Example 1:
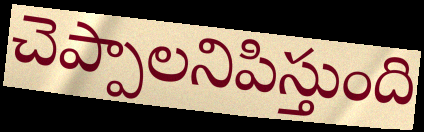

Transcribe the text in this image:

చెప్పాలనిపిస్తుంది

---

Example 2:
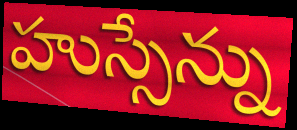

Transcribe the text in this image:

హుస్సేన్ను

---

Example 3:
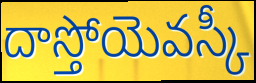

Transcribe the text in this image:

దాస్తోయెవస్కీ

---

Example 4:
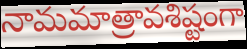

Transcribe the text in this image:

నామమాత్రావశిష్టంగా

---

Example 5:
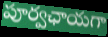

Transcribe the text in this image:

పూర్వఛాయగా